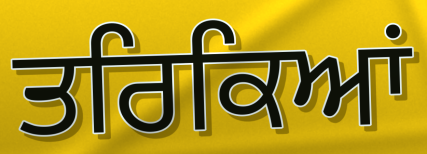
ਤਰਿਕਿਆਂ